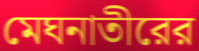
মেঘনাতীরের